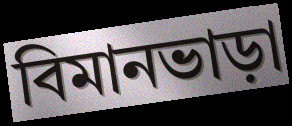
বিমানভাড়া